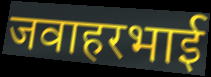
जवाहरभाई